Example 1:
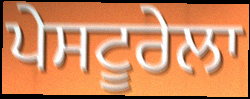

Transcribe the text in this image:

ਪੇਸਟੂਰੇਲਾ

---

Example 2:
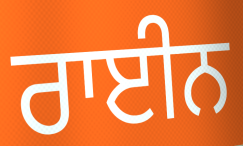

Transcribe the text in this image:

ਰਾਈਨ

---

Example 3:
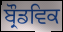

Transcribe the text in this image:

ਬ੍ਰੌਡਵਿਕ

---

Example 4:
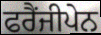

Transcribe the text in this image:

ਫਰੈਂਜੀਪੇਨ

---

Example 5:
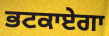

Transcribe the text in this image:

ਭਟਕਾਏਗਾ